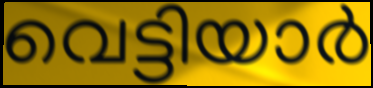
വെട്ടിയാർ